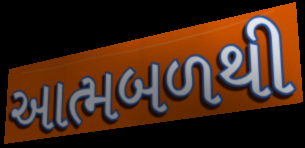
આત્મબળથી